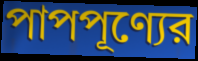
পাপপূণ্যের